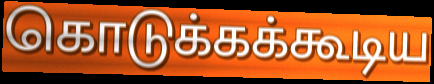
கொடுக்கக்கூடிய